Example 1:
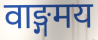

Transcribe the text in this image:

वाङ्गमय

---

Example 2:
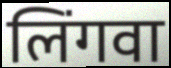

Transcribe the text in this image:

लिंगवा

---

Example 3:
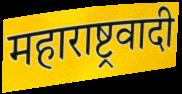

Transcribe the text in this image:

महाराष्ट्रवादी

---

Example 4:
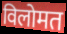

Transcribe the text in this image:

विलोमत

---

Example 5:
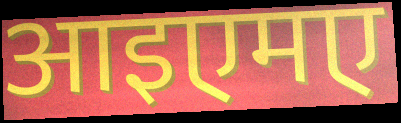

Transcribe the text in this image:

आइएमए